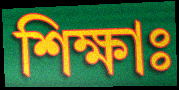
শিক্ষাঃ